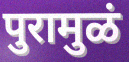
पुरामुळं